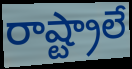
రాష్ట్రాలే